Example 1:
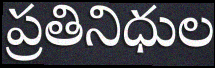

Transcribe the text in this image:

ప్రతినిధుల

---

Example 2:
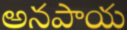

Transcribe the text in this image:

అనపాయ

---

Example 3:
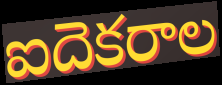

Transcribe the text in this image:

ఐదెకరాల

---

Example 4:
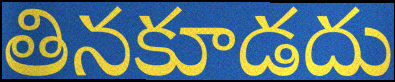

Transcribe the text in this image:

తినకూడదు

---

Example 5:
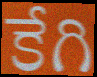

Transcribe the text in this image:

కేగి